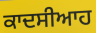
ਕਾਦਸੀਆਹ